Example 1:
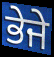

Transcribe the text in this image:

ਭੇਜੇ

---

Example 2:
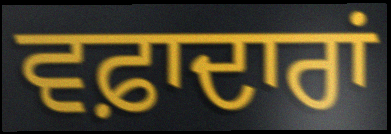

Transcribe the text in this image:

ਵਫ਼ਾਦਾਰਾਂ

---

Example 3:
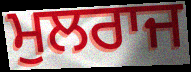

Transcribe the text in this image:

ਮੁਲਰਾਜ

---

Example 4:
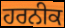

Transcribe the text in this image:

ਹਰਨੀਕ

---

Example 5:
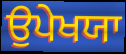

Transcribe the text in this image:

ਉਪੇਖਯਾ